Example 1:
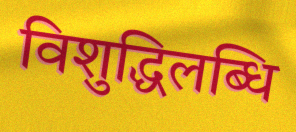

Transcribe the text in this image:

विशुद्धिलब्धि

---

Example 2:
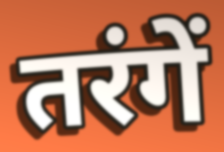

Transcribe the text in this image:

तरंगें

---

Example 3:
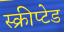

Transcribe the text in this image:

स्क्रीप्टेड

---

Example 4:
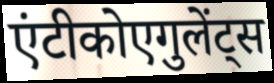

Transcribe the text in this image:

एंटीकोएगुलेंट्स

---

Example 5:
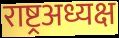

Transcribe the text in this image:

राष्ट्रअध्यक्ष